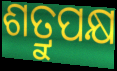
ଶତ୍ରୁପକ୍ଷ